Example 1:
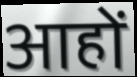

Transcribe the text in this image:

आहों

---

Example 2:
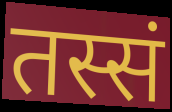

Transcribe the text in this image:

तस्सं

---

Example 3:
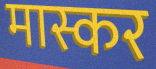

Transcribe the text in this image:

मास्कर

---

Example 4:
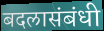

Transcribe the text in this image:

बदलासंबंधी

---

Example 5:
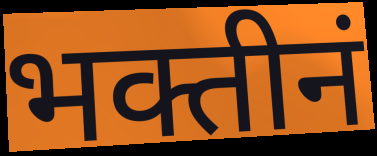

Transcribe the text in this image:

भक्तीनं